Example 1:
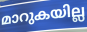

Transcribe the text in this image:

മാറുകയില്ല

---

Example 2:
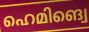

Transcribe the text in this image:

ഹെമിങ്വെ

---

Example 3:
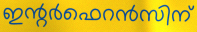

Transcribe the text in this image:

ഇന്റർഫെറൻസിന്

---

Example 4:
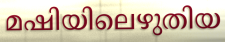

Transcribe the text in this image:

മഷിയിലെഴുതിയ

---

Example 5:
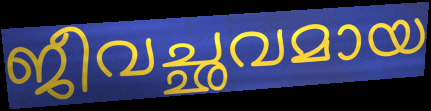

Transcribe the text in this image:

ജീവച്ഛവമായ